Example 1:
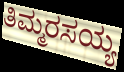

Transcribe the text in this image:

ತಿಮ್ಮರಸಯ್ಯ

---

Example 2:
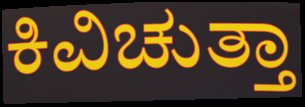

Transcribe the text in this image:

ಕಿವಿಚುತ್ತಾ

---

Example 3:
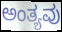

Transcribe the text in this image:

ಅಂತ್ಯವು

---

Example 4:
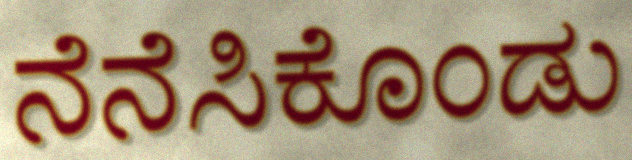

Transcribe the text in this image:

ನೆನೆಸಿಕೊಂಡು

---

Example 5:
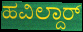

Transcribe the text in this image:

ಹವಿಲ್ದಾರ್